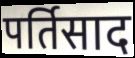
पर्तिसाद